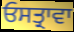
ਓਸਤ੍ਰਾਵਾ